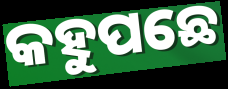
କହୁପଛେ